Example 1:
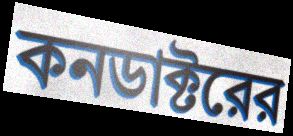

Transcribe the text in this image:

কনডাক্টরের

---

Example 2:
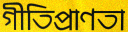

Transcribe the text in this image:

গীতিপ্রাণতা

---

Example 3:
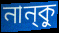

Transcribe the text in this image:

নান্‌কু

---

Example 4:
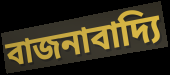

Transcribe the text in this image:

বাজনাবাদ্যি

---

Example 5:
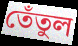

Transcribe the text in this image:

তেঁতুল